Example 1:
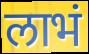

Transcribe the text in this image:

लाभं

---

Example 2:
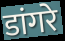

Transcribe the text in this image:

डांगरे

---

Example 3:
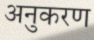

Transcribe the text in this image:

अनुकरण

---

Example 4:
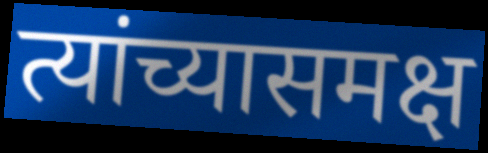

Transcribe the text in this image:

त्यांच्यासमक्ष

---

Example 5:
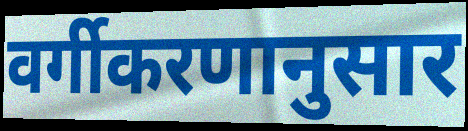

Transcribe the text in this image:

वर्गीकरणानुसार